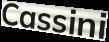
Cassini